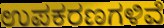
ಉಪಕರಣಗಳಿವೆ